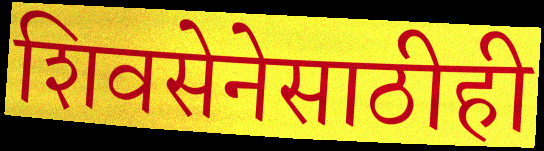
शिवसेनेसाठीही